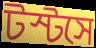
টস্টসে